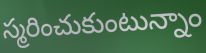
స్మరించుకుంటున్నాం